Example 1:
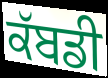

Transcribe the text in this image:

ਕੱਬਡੀ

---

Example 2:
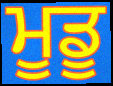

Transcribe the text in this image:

ਮੂਡੂ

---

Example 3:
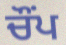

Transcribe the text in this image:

ਚੌਂਪ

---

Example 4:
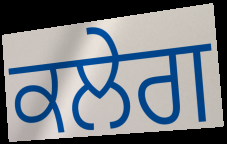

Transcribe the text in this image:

ਕਲੇਗ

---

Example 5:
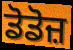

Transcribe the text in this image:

ਡੋਡੋਜ਼